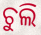
ଚୁଲି